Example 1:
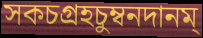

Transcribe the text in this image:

সকচগ্রহচুম্বনদানম্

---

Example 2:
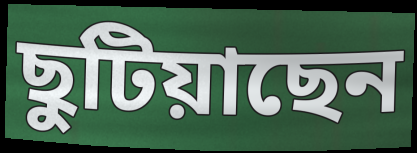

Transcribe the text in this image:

ছুটিয়াছেন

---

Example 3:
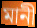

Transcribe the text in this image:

মানী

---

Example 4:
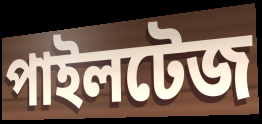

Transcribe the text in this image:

পাইলটেজ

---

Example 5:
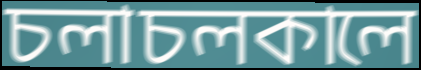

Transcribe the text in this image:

চলাচলকালে